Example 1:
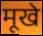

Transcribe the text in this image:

मूखे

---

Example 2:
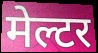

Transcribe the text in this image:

मेल्टर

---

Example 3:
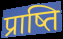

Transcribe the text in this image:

प्राष्ति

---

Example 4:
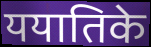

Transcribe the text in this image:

ययातिके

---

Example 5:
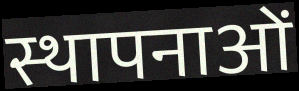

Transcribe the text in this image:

स्थापनाओं